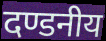
दण्डनीय